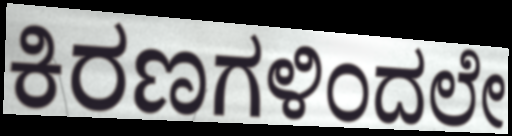
ಕಿರಣಗಳಿಂದಲೇ